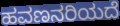
ಹವಣನರಿಯದೆ